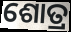
ଶୋତ୍ର